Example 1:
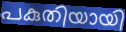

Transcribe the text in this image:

പകുതിയായി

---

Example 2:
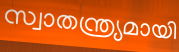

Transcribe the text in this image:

സ്വാതന്ത്ര്യമായി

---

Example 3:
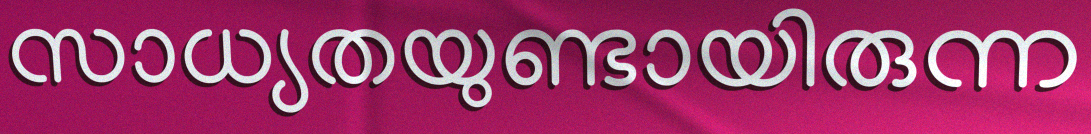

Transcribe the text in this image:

സാധ്യതയുണ്ടായിരുന്ന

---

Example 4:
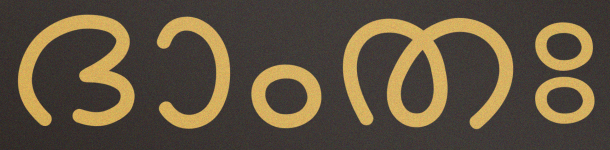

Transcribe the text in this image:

ദാംതഃ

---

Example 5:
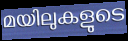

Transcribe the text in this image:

മയിലുകളുടെ